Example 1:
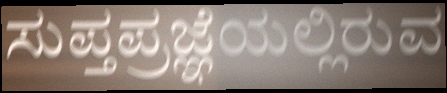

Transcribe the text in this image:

ಸುಪ್ತಪ್ರಜ್ಞೆಯಲ್ಲಿರುವ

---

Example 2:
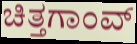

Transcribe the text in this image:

ಚಿತ್ತಗಾಂವ್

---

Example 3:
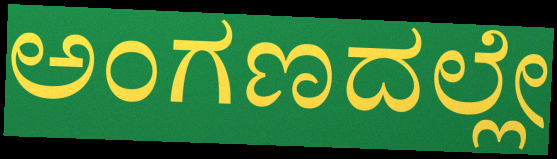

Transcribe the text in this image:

ಅಂಗಣದಲ್ಲೇ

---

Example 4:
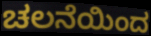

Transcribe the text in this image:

ಚಲನೆಯಿಂದ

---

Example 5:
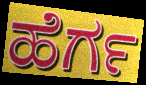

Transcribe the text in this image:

ಹೆರ್ಗ